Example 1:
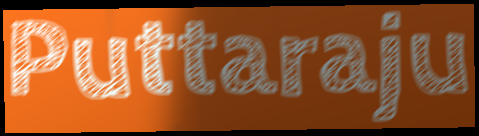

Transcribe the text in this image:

Puttaraju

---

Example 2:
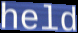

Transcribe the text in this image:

held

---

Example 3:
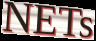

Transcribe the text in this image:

NETs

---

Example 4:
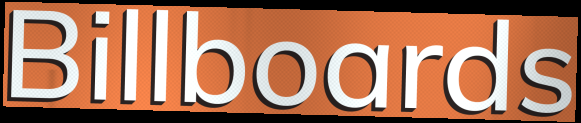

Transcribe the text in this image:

Billboards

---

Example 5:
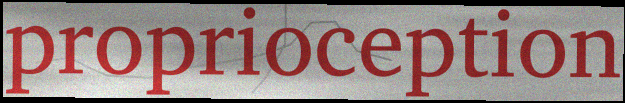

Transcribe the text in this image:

proprioception